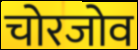
चोरजोव